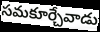
సమకూర్చేవాడు